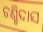
ଚଣ୍ଡିଦାସ